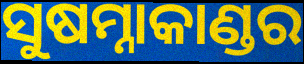
ସୁଷମ୍ନାକାଣ୍ଡର